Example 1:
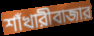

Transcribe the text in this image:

শাঁখারীবাজার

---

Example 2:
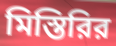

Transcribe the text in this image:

মিস্তিরির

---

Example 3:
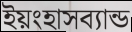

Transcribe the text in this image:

ইয়ংহাসব্যান্ড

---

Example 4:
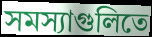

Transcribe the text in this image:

সমস্যাগুলিতে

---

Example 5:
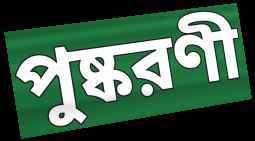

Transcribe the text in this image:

পুষ্করণী